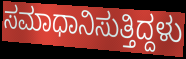
ಸಮಾಧಾನಿಸುತ್ತಿದ್ದಳು